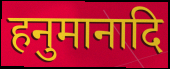
हनुमानादि